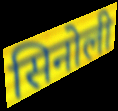
सिनोली